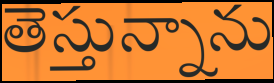
తెస్తున్నాను